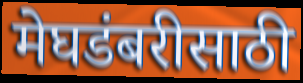
मेघडंबरीसाठी